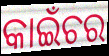
କାଇଁଚର